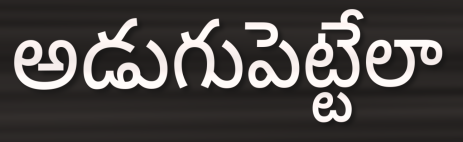
అడుగుపెట్టేలా